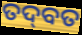
ତଦ୍‍ବତ